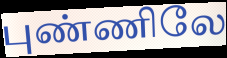
புண்ணிலே